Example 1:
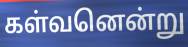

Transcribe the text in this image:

கள்வனென்று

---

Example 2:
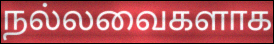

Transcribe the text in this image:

நல்லவைகளாக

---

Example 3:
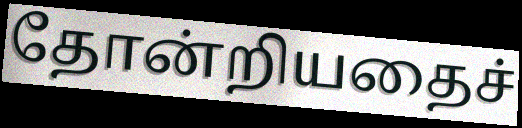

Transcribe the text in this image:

தோன்றியதைச்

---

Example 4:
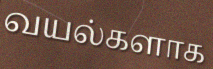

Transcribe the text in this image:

வயல்களாக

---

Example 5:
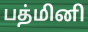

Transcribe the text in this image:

பத்மினி